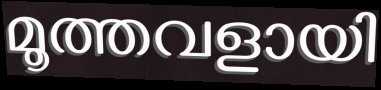
മൂത്തവളായി